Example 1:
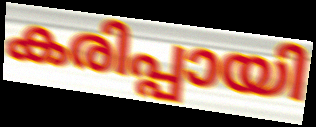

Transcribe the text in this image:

കരിപ്പായി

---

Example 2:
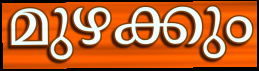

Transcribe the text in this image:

മുഴക്കും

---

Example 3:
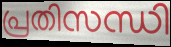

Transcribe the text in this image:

പ്രതിസന്ധി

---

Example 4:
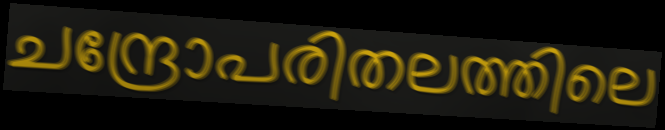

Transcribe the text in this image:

ചന്ദ്രോപരിതലത്തിലെ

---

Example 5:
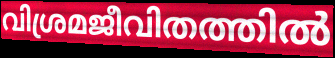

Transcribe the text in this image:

വിശ്രമജീവിതത്തിൽ